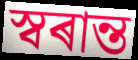
স্বৰান্ত